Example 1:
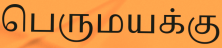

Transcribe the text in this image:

பெருமயக்கு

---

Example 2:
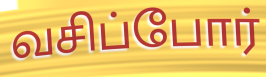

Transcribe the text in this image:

வசிப்போர்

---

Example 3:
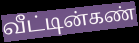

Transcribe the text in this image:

வீட்டின்கண்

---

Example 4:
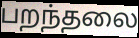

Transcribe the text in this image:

பறந்தலை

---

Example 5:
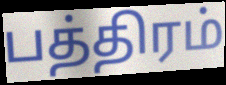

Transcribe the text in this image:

பத்திரம்